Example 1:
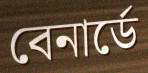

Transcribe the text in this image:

বেনাৰ্ডে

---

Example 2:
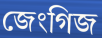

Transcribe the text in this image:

জেংগিজ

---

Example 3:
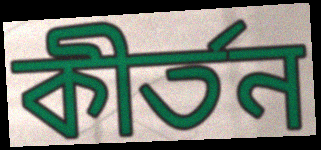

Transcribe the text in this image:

কীৰ্তন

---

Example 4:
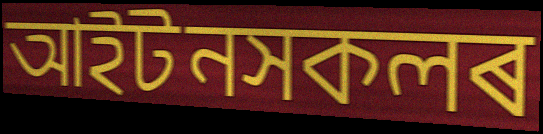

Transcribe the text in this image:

আইটনসকলৰ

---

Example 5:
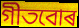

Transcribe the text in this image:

গীতবোৰ